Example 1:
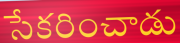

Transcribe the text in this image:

సేకరించాడు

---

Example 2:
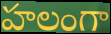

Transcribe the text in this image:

హలంగా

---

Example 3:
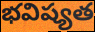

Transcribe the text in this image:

భవిష్యత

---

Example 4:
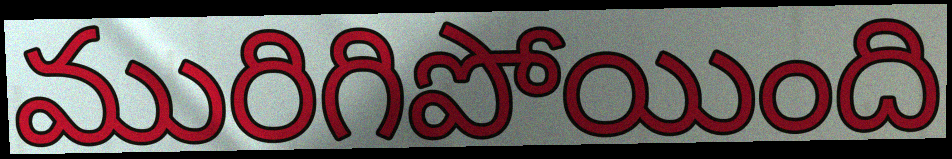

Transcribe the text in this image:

మురిగిపోయింది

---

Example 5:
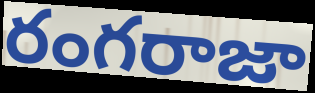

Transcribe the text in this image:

రంగరాజా